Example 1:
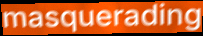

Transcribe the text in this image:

masquerading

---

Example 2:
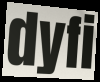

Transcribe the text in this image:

dyfi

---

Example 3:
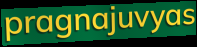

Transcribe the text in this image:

pragnajuvyas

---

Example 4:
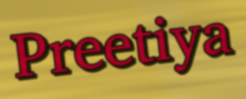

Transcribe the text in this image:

Preetiya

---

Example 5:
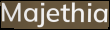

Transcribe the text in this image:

Majethia